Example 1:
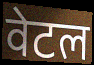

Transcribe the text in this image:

वेटल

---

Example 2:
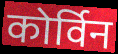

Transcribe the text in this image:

कोर्विन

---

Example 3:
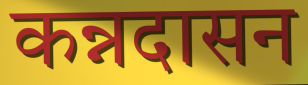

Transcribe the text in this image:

कन्नदासन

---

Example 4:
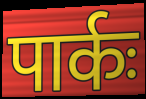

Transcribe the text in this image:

पार्कः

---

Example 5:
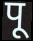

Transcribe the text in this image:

पू